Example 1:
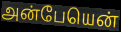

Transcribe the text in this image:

அன்பேயென்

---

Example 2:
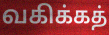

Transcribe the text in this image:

வகிக்கத்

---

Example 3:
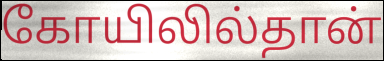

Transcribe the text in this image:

கோயிலில்தான்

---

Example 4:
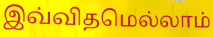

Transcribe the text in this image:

இவ்விதமெல்லாம்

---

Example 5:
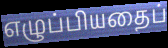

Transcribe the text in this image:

எழுப்பியதைப்